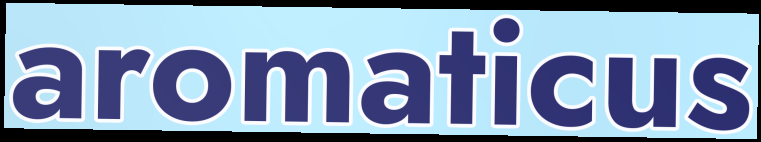
aromaticus